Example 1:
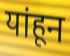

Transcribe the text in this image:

यांहून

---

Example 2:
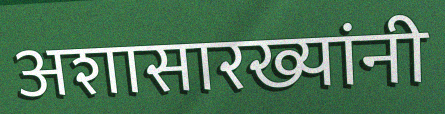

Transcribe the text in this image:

अशासारख्यांनी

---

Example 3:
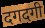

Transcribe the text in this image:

दगदगी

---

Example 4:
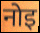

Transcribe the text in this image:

नोइ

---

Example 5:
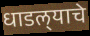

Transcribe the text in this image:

धाडल्याचे